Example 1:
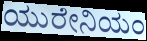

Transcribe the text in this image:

ಯುರೇನಿಯಂ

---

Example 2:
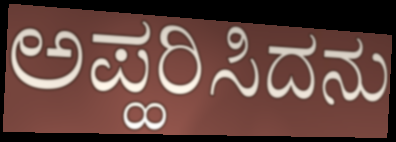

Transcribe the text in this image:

ಅಪ್ಹರಿಸಿದನು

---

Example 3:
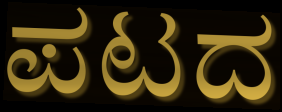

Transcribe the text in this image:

ಪಟದ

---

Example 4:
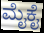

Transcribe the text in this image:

ಮೈಕೈ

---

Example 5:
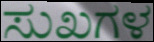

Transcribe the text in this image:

ಸುಖಗಳ